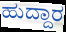
ಹುದ್ದಾರ